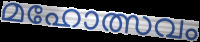
മഹോത്സവം